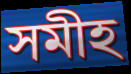
সমীহ